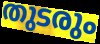
തുടരും